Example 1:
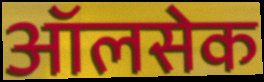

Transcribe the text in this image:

ऑलसेक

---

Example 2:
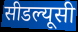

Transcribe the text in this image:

सीडल्यूसी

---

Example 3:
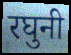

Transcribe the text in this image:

रघुनी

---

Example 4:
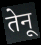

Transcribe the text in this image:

तेनू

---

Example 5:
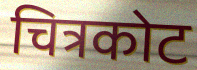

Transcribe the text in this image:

चित्रकोट